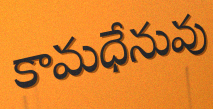
కామధేనువు